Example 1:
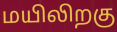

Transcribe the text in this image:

மயிலிறகு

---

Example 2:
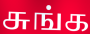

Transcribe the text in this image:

சுங்க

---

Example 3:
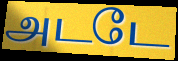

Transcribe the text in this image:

அடடே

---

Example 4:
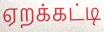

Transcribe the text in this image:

ஏறக்கட்டி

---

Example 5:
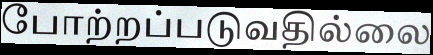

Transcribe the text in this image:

போற்றப்படுவதில்லை